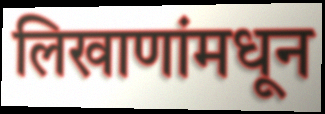
लिखाणांमधून